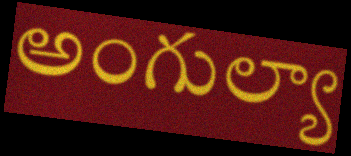
అంగుల్యా